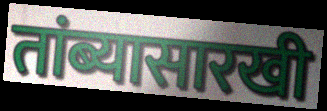
तांब्यासारखी